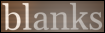
blanks